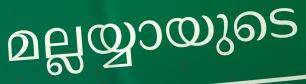
മല്ലയ്യായുടെ